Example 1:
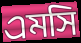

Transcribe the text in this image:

এমসি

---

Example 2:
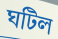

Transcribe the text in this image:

ঘটিল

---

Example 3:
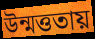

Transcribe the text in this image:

উন্মত্ততায়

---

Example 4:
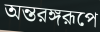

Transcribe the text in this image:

অন্তরঙ্গরূপে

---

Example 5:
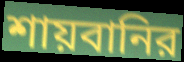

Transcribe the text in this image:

শায়বানির